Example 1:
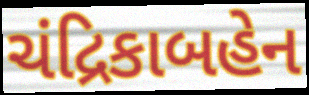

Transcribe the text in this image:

ચંદ્રિકાબહેન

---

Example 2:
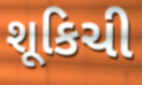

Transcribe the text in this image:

શૂકિચી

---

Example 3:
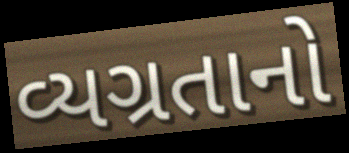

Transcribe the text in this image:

વ્યગ્રતાનો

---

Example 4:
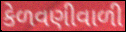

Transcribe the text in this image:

કેળવણીવાળી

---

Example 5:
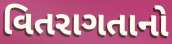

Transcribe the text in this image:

વિતરાગતાનો